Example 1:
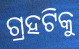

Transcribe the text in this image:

ଗ୍ରହଟିକୁ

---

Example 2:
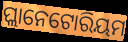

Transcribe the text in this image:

ପ୍ଲାନେଟୋରିୟମ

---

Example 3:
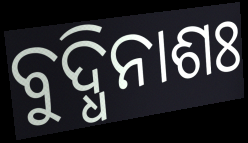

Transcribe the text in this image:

ବୁଦ୍ଧିନାଶଃ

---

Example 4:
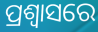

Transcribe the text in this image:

ପ୍ରଶ୍ଵାସରେ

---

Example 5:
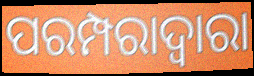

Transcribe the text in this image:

ପରମ୍ପରାଦ୍ବାରା